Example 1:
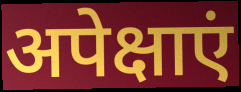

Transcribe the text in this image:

अपेक्षाएं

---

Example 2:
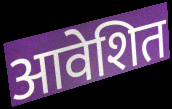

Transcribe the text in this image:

आवेशित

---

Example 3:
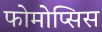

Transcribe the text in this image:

फोमोप्सिस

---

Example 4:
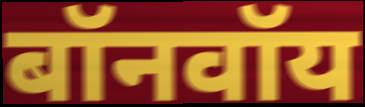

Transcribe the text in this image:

बॉनवॉय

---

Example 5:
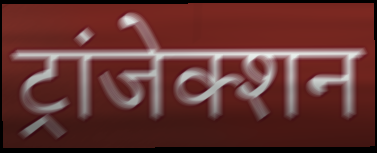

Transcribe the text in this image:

ट्रांजेक्शन